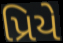
પ્રિયે